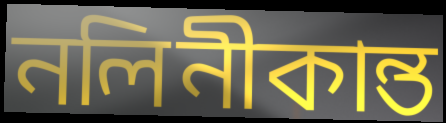
নলিনীকান্ত